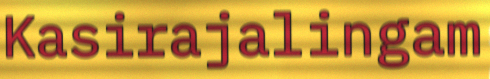
Kasirajalingam